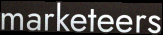
marketeers